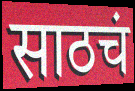
साठचं